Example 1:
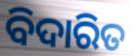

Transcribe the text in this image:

ବିଦାରିତ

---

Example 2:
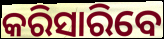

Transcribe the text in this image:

କରିସାରିବେ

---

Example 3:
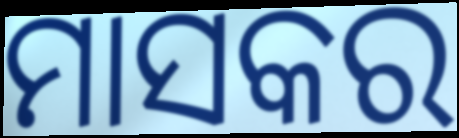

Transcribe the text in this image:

ମାସକର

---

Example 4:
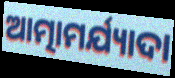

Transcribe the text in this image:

ଆତ୍ମାମର୍ଯ୍ୟାଦା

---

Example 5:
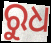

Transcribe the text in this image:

ରୁଧ